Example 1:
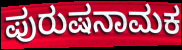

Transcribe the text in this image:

ಪುರುಷನಾಮಕ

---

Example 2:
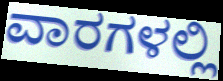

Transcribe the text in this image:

ವಾರಗಳಲ್ಲಿ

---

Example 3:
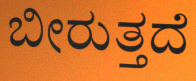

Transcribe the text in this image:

ಬೀರುತ್ತದೆ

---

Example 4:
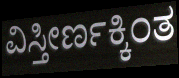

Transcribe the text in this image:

ವಿಸ್ತೀರ್ಣಕ್ಕಿಂತ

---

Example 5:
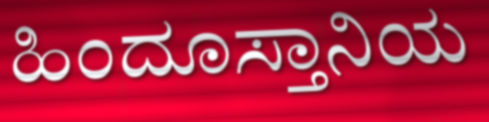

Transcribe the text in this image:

ಹಿಂದೂಸ್ತಾನಿಯ